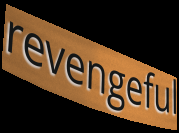
revengeful